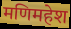
मणिमहेश